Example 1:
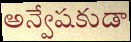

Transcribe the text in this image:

అన్వేషకుడా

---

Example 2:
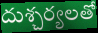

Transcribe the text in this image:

దుశ్చర్యలతో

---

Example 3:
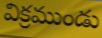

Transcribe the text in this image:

విక్రముండు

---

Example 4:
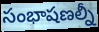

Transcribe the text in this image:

సంభాషణల్నీ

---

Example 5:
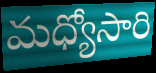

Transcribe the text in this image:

మధ్యోసారి